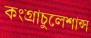
কংগ্রাচুলেশান্স